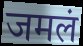
जमलं